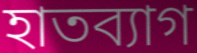
হাতব্যাগ